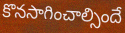
కొనసాగించాల్సిందే